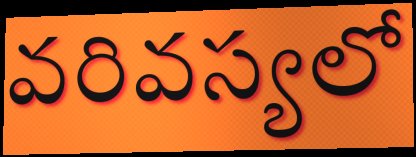
వరివస్యలో